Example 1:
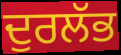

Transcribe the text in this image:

ਦੁਰਲੱਭ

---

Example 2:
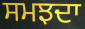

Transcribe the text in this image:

ਸਮਝਦਾ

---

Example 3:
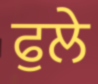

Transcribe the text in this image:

ਫੁਲੇ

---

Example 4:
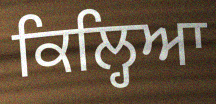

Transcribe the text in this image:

ਕਿਲ੍ਹਿਆ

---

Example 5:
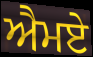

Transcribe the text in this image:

ਐਮਏ